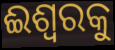
ଈଶ୍ୱରକୁ